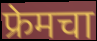
फ्रेमचा